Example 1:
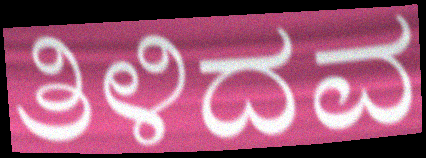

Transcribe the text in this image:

ತಿಳಿದವ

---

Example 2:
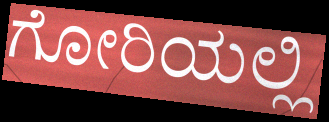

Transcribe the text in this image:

ಗೋರಿಯಲ್ಲಿ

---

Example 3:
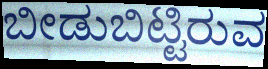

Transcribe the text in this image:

ಬೀಡುಬಿಟ್ಟಿರುವ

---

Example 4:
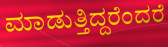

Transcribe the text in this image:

ಮಾಡುತ್ತಿದ್ದರೆಂದರೆ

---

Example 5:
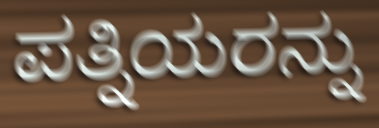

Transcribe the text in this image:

ಪತ್ನಿಯರನ್ನು